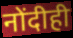
नोंदीही